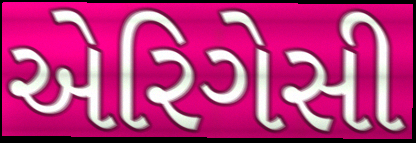
એરિગેસી